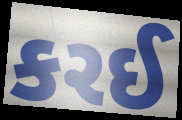
કરઈ